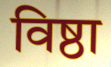
विष्ठा